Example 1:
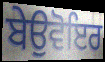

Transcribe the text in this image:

ਬੇਉਵੋਇਰ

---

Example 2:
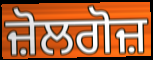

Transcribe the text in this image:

ਜ਼ੋਲਗੋਜ਼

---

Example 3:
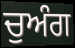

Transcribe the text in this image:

ਚੁਅੰਗ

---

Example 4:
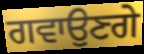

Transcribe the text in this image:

ਗਵਾਉਣਗੇ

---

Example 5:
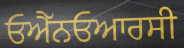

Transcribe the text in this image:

ਓਐੱਨਓਆਰਸੀ